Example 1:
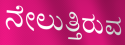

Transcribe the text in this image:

ನೇಲುತ್ತಿರುವ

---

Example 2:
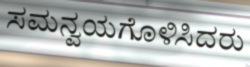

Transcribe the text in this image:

ಸಮನ್ವಯಗೊಳಿಸಿದರು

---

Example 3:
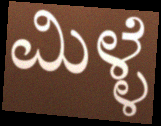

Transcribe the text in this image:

ಮಿಳ್ಳೆ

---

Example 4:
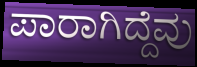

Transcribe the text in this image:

ಪಾರಾಗಿದ್ದೆವು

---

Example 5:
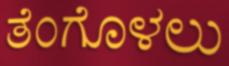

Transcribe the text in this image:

ತೆಂಗೊಳಲು